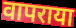
वापराया